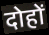
दोहों